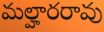
మల్హారరావు